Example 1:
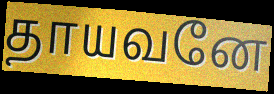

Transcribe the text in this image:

தாயவனே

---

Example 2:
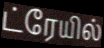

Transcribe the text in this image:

ட்ரேயில்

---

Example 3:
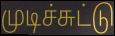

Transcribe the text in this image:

முடிச்சுட்டு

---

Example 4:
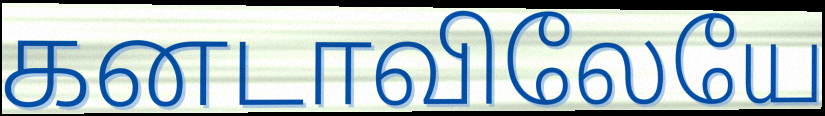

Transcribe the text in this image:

கனடாவிலேயே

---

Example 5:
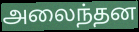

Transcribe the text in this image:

அலைந்தன